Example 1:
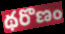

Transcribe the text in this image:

థరొణం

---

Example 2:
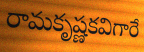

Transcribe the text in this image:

రామకృష్ణకవిగారే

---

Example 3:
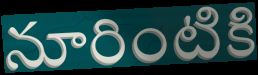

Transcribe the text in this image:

నూరింటికి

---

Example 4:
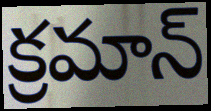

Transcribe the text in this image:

క్రమాన్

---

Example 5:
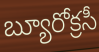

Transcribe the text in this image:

బ్యూరోక్రసీ